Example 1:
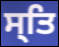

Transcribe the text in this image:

ਸ੍ਤਿ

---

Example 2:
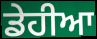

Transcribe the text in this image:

ਡੇਹੀਆ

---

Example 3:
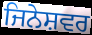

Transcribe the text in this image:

ਜਿਨੇਸ਼ਵਰ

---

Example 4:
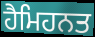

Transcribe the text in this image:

ਹੈਮਿਹਨਤ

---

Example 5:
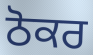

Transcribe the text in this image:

ਠੋਕਰ